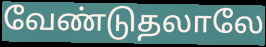
வேண்டுதலாலே